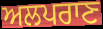
ਅਲਪਰਾਣ